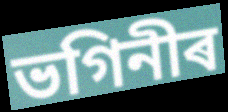
ভগিনীৰ